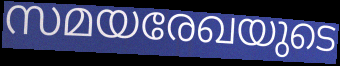
സമയരേഖയുടെ